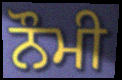
ਨੌਮੀ